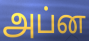
அப்ன